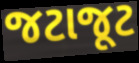
જટાજૂટ